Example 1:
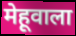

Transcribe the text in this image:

मेहूवाला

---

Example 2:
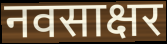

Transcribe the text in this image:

नवसाक्षर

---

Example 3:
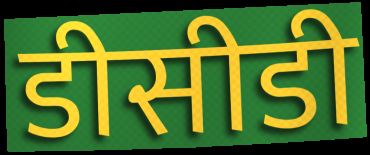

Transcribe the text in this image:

डीसीडी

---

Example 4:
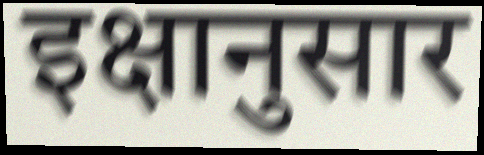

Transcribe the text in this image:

इक्षानुसार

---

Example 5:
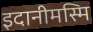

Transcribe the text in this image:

इदानीमस्मि